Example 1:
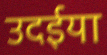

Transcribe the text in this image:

उदईया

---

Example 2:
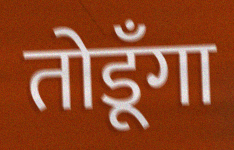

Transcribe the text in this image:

तोडूँगा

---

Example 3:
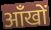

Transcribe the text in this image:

आँखों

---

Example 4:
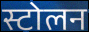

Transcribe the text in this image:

स्टोलन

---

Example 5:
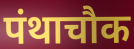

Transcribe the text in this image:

पंथाचौक